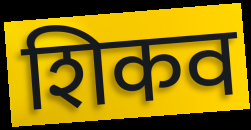
शिकव